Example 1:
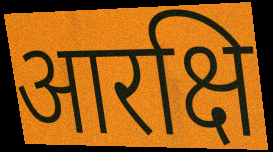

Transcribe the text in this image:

आरक्षि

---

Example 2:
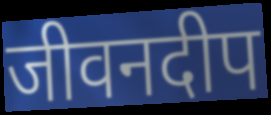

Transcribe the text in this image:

जीवनदीप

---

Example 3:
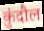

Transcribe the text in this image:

कुंदौल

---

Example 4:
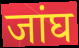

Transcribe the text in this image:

जांघ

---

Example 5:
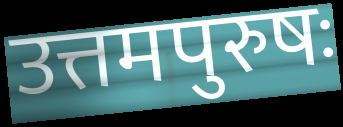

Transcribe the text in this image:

उत्तमपुरुषः